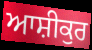
ਆਸ਼ੀਕੁਰ